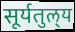
सूर्यतुल्य